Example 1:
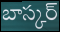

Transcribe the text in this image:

బాస్కర్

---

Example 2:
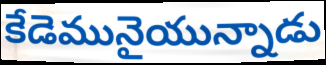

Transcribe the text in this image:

కేడెమునైయున్నాడు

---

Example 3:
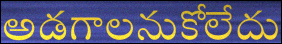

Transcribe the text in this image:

అడగాలనుకోలేదు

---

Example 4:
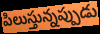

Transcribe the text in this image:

పిలుస్తున్నప్పుడు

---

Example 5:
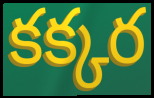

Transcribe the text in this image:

కక్కర